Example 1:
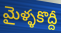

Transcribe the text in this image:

మైళ్ళకొద్దీ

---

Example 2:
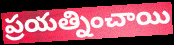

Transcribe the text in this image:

ప్రయత్నించాయి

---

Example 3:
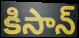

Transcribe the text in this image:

కిసాన్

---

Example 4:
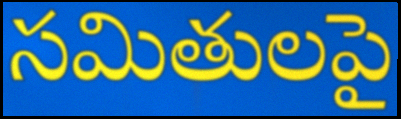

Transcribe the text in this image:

సమితులపై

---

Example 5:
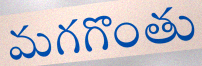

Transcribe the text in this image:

మగగొంతు